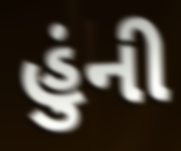
હુંની